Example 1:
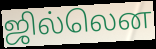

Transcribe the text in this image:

ஜில்லென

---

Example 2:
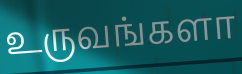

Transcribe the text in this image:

உருவங்களா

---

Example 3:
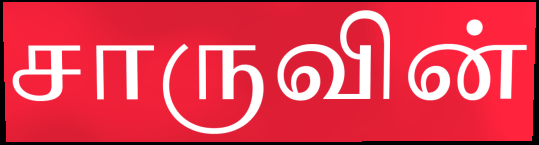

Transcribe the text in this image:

சாருவின்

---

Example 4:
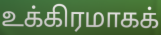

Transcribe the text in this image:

உக்கிரமாகக்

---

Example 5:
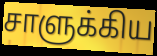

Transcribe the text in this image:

சாளுக்கிய